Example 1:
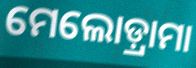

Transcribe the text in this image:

ମେଲୋଡ଼୍ରାମା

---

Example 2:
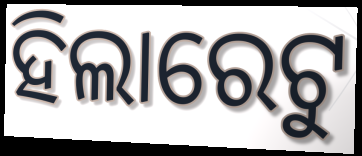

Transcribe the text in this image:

ହିଲାରେଟୁ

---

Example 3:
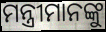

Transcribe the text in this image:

ମନ୍ତ୍ରୀମାନଙ୍କୁ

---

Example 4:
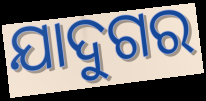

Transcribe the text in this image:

ଯାଦୁଗର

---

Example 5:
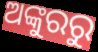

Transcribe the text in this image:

ଅଙ୍କୁରରୁ